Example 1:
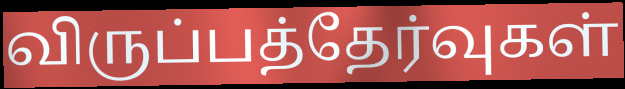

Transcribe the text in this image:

விருப்பத்தேர்வுகள்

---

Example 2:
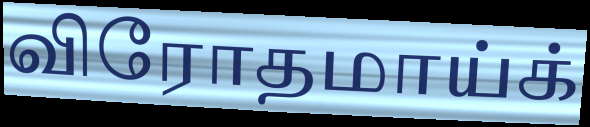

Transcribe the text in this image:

விரோதமாய்க்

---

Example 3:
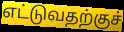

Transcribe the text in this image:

எட்டுவதற்குச்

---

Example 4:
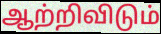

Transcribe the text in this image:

ஆற்றிவிடும்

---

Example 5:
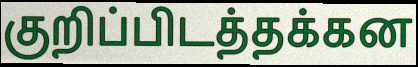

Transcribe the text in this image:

குறிப்பிடத்தக்கன